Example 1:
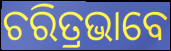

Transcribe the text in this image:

ଚରିତ୍ରଭାବେ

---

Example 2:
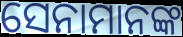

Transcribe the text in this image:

ସେନାମାନଙ୍କ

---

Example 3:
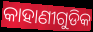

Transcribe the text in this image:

କାହାଣୀଗୁଡିକ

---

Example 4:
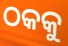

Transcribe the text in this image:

ଠକକୁ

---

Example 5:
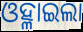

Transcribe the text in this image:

ଓହ୍ଳାଇଲା